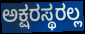
ಅಕ್ಷರಸ್ಥರಲ್ಲ